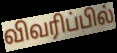
விவரிப்பில்